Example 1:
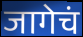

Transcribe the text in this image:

जागेचं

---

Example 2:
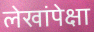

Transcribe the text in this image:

लेखांपेक्षा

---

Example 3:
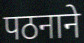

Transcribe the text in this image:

पठनाने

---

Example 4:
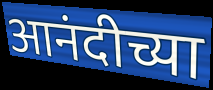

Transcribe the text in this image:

आनंदीच्या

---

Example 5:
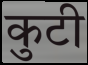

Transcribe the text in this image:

कुटी